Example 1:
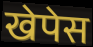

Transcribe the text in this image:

खेपेस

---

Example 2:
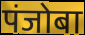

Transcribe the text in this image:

पंजोबा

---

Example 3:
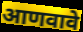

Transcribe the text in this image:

आणवावे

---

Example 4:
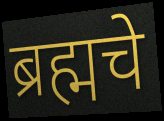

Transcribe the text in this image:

ब्रह्मचे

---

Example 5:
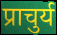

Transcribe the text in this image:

प्राचुर्य